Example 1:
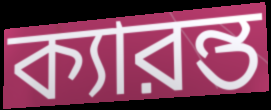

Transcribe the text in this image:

ক্যারন্ত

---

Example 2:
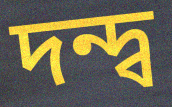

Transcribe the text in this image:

দন্দ্ব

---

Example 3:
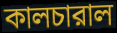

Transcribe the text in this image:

কালচারাল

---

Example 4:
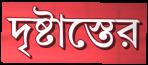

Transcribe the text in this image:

দৃষ্টাস্তের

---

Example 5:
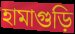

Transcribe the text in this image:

হামাগুড়ি